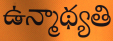
ఉన్మాథ్యతి